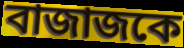
বাজাজকে